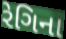
રેગિના